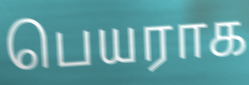
பெயராக